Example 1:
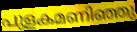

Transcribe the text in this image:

പുളകമണിഞ്ഞു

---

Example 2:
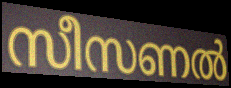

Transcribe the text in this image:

സീസണൽ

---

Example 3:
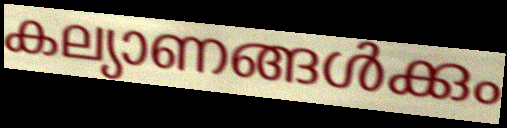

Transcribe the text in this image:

കല്യാണങ്ങൾക്കും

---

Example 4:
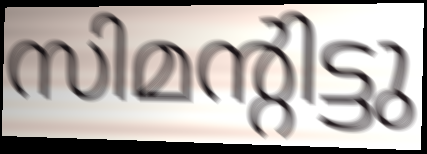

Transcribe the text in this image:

സിമന്റിട്ടു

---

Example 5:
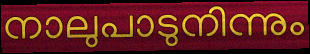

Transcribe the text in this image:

നാലുപാടുനിന്നും